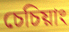
চেচিয়াং